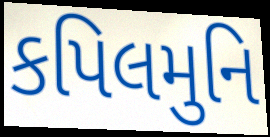
કપિલમુનિ